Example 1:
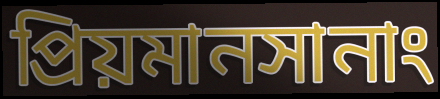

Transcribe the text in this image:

প্রিয়মানসানাং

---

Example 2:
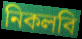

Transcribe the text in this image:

নিকলবি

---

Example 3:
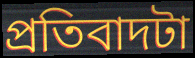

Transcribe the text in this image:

প্রতিবাদটা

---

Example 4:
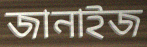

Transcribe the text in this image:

জানাইজ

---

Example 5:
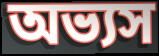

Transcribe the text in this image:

অভ্যস